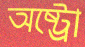
অষ্ট্ৰো